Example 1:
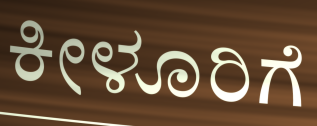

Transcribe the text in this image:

ಕೀಳೂರಿಗೆ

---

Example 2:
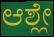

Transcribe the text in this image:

ಆಶ್ಲೇ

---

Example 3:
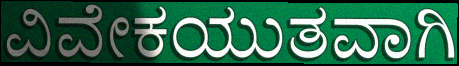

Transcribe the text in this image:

ವಿವೇಕಯುತವಾಗಿ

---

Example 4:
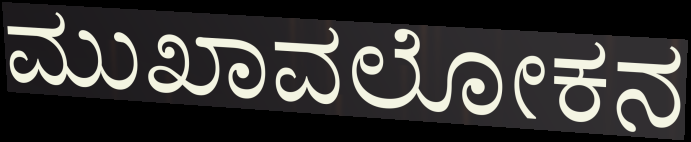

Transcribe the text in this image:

ಮುಖಾವಲೋಕನ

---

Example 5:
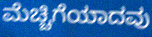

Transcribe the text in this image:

ಮೆಚ್ಚಿಗೆಯಾದವು